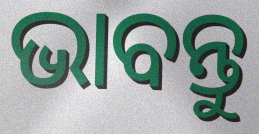
ଭାବନ୍ତୁ